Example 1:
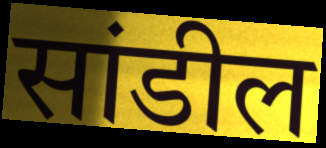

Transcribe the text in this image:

सांडील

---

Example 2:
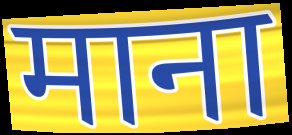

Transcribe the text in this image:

माना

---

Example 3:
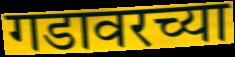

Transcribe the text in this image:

गडावरच्या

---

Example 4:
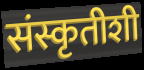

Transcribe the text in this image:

संस्कृतीशी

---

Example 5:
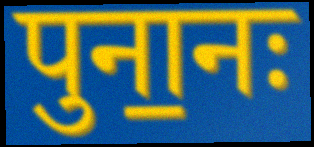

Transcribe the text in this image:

पुना॒नः